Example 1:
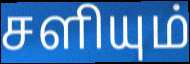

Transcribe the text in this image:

சளியும்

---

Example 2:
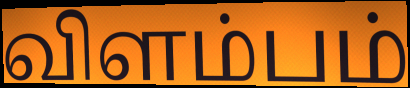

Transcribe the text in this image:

விளம்பம்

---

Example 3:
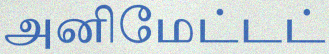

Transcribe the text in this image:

அனிமேட்டட்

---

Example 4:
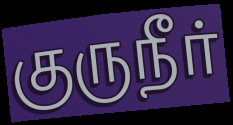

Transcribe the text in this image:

குருநீர்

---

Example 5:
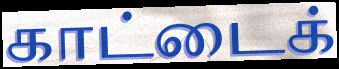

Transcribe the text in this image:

காட்டைக்